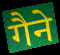
गैने